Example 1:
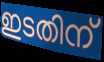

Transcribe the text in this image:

ഇടതിന്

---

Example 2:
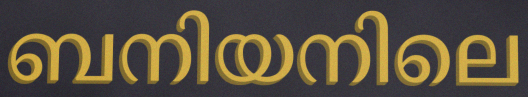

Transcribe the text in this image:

ബനിയനിലെ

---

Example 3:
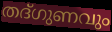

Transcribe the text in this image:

തദ്ഗുണവും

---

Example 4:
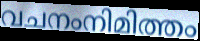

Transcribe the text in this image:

വചനംനിമിത്തം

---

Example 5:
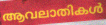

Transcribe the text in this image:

ആവലാതികൾ